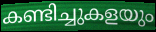
കണ്ടിച്ചുകളയും